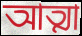
আত্মা